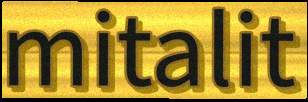
mitalit